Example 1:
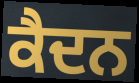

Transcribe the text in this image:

ਕੈਦਨ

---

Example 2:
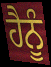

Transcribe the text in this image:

ਹੈਨੂੰ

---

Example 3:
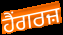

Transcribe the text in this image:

ਹੈਂਗਰਜ਼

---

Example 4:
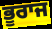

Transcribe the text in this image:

ਭੂਰਾਜ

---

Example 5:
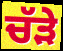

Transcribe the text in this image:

ਚੱੜੇ